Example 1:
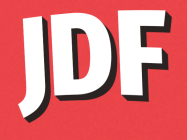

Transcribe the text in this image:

JDF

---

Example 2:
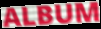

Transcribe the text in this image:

ALBUM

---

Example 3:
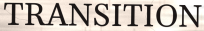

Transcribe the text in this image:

TRANSITION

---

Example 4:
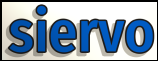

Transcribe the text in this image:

siervo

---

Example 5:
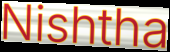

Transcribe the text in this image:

Nishtha